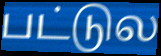
பட்டுல